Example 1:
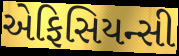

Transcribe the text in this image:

એફિસિયન્સી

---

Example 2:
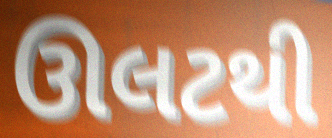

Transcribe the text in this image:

ઊલટથી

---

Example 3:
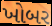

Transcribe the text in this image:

ખોબર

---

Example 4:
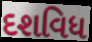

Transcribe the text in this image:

દશવિધ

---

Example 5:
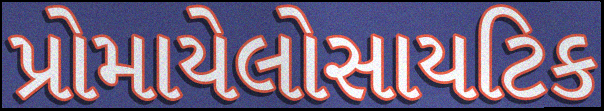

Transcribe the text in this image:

પ્રોમાયેલોસાયટિક